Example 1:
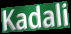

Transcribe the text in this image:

Kadali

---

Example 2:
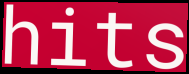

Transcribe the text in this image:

hits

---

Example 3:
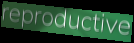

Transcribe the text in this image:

reproductive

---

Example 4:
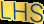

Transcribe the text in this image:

LHS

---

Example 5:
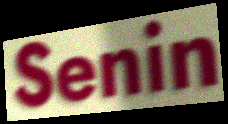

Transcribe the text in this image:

Senin